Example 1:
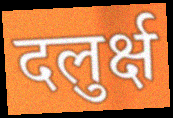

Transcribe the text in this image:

दलुर्क्ष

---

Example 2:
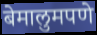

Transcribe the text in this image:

बेमालुमपणे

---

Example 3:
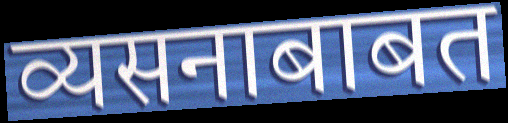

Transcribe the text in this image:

व्यसनाबाबत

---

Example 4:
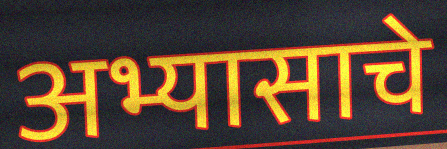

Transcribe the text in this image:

अभ्यासाचे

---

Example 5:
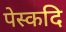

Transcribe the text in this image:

पेस्कदि